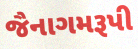
જૈનાગમરૂપી